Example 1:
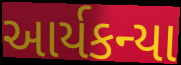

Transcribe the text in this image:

આર્યકન્યા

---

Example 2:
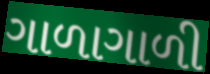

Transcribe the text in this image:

ગાળાગાળી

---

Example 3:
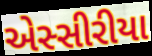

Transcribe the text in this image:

એસ્સીરીયા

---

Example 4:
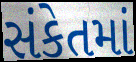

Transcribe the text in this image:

સંકેતમાં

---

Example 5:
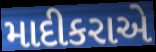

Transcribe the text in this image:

માદીકરાએ